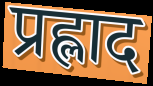
प्रह्लाद